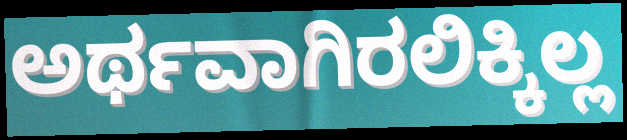
ಅರ್ಥವಾಗಿರಲಿಕ್ಕಿಲ್ಲ